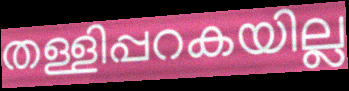
തള്ളിപ്പറകയില്ല